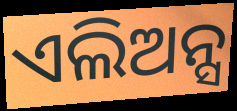
ଏଲିଅନ୍ସ